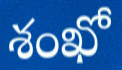
శంఖో